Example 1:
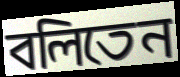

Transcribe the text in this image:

বলিতেন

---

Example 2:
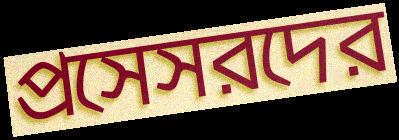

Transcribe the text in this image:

প্রসেসরদের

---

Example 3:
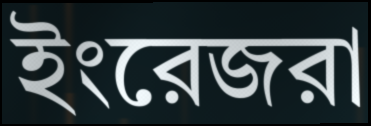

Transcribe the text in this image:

ইংরেজরা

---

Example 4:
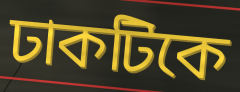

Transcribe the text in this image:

ঢাকটিকে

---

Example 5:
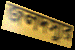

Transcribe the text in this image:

জলদস্যুর